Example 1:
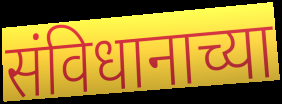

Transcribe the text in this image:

संविधानाच्या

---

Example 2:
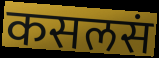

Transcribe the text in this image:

कसलसं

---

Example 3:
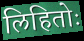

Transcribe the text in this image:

लिहितोः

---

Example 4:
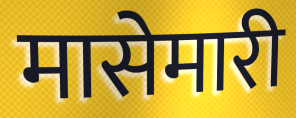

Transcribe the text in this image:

मासेमारी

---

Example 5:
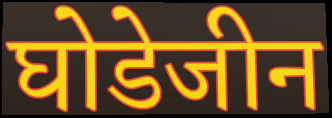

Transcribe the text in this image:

घोडेजीन